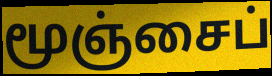
மூஞ்சைப்